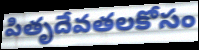
పితృదేవతలకోసం